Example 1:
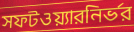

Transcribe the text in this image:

সফটওয়্যারনির্ভর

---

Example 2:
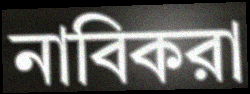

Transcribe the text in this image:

নাবিকরা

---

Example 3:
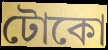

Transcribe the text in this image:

টোকো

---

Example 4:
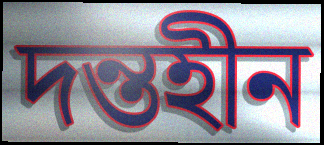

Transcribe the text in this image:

দন্তহীন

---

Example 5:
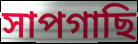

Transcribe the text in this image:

সাপগাছি